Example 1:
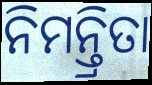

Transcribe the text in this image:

ନିମନ୍ତ୍ରିତା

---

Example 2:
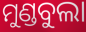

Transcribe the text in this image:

ମୁଣ୍ଡବୁଲା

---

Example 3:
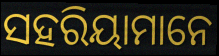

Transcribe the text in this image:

ସହରିୟାମାନେ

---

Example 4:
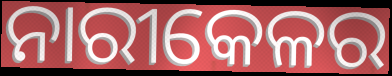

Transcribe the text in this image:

ନାରୀକେଳର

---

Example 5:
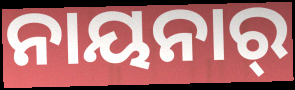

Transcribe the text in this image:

ନାୟନାର୍